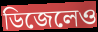
ডিজেলেও